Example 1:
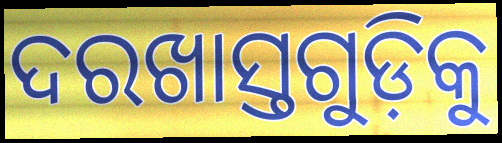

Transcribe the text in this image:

ଦରଖାସ୍ତଗୁଡ଼ିକୁ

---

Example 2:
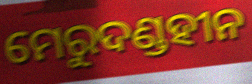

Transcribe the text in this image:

ମେରୁଦଣ୍ଡହୀନ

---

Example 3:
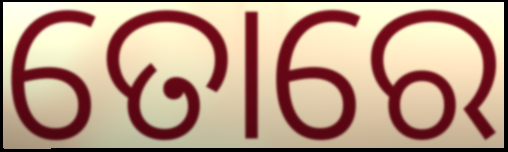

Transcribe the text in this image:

ତୋରେ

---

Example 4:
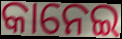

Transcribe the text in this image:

କାନେଇ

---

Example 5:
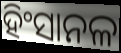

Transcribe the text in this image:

ହିଂସାନଳ